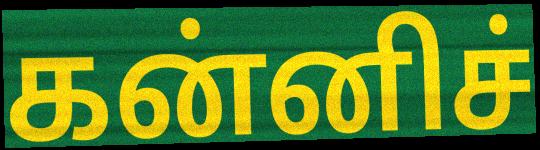
கன்னிச்